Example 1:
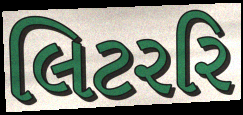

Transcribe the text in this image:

લિટરરિ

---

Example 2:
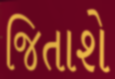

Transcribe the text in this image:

જિતાશે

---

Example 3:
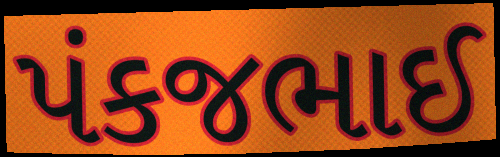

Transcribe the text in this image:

પંકજભાઈ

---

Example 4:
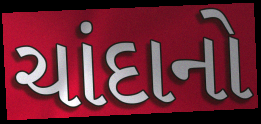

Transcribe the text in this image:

ચાંદાનો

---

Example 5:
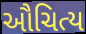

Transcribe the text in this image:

ઔચિત્ય